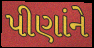
પીણાંને